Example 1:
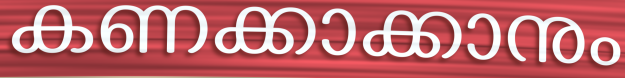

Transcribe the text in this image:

കണക്കാക്കാനും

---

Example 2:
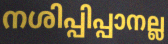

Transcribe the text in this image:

നശിപ്പിപ്പാനല്ല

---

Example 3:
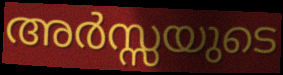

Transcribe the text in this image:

അർസ്സയുടെ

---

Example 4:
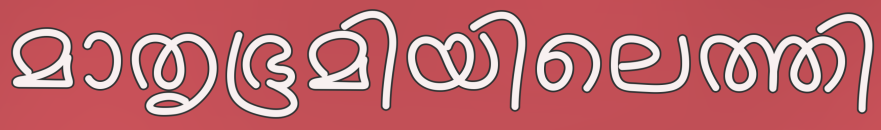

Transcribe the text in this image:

മാതൃഭൂമിയിലെത്തി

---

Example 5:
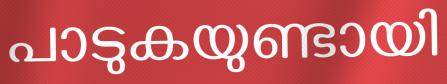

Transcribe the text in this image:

പാടുകയുണ്ടായി